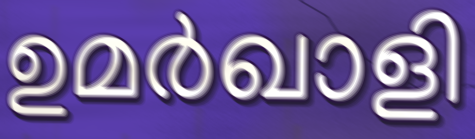
ഉമർഖാളി